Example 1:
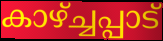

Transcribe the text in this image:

കാഴ്ച്ചപ്പാട്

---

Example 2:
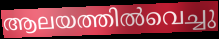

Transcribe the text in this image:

ആലയത്തിൽവെച്ചു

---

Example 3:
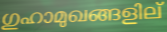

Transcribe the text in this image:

ഗുഹാമുഖങ്ങളില്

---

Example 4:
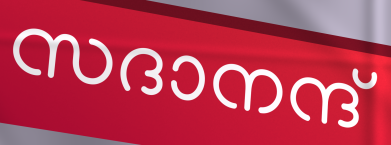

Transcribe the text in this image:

സദാനന്ദ്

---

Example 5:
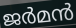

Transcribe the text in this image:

ജർമൻ